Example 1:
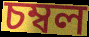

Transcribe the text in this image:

চম্বল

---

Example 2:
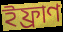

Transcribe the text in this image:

ইফ্ৰাণ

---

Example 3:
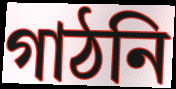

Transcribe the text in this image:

গাঠনি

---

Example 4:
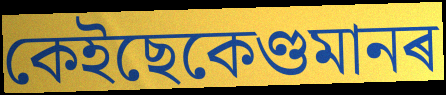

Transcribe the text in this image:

কেইছেকেণ্ডমানৰ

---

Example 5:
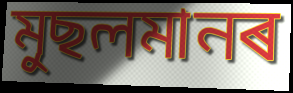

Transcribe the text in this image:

মুছলমানৰ